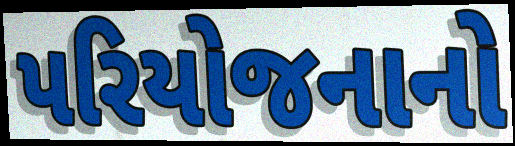
પરિયોજનાનો